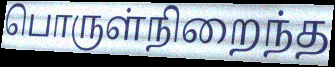
பொருள்நிறைந்த